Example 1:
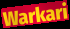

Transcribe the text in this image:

Warkari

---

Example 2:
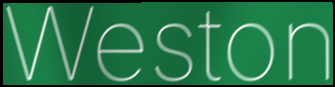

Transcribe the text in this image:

Weston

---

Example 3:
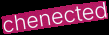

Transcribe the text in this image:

chenected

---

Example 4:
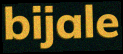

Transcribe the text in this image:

bijale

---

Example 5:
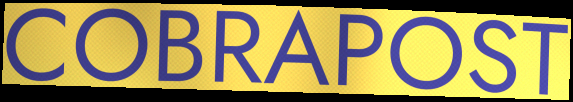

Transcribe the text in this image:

COBRAPOST